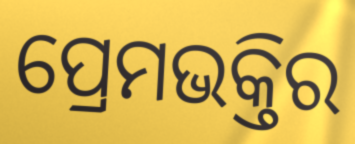
ପ୍ରେମଭକ୍ତିର